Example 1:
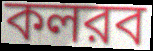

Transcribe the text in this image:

কলরব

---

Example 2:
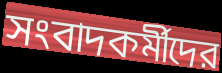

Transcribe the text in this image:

সংবাদকর্মীদের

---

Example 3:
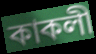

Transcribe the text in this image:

কাকলী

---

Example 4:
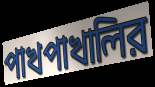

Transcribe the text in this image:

পাখপাখালির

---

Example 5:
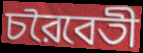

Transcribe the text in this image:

চরৈবেতী